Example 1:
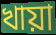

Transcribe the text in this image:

খায়া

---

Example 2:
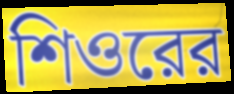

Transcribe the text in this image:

শিওরের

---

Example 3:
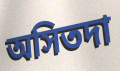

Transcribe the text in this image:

অসিতদা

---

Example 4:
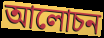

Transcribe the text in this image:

আলোচন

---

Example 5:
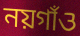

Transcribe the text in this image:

নয়গাঁও